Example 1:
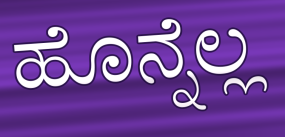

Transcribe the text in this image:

ಹೊನ್ನೆಲ್ಲ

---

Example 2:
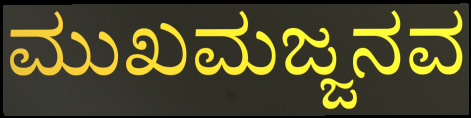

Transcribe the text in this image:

ಮುಖಮಜ್ಜನವ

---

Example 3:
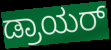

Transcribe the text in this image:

ಡ್ರಾಯರ್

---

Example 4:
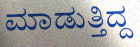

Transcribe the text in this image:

ಮಾಡುತ್ತಿದ್ದ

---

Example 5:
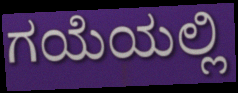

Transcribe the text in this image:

ಗಯೆಯಲ್ಲಿ